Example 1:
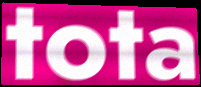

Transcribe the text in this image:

tota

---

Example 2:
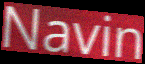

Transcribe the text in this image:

Navin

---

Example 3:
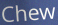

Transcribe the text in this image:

Chew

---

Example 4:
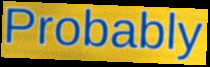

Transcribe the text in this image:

Probably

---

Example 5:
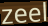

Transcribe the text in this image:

zeel